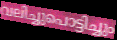
വലിച്ചുപൊട്ടിച്ചും